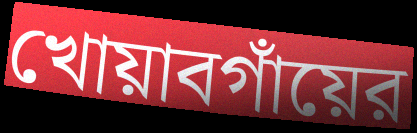
খোয়াবগাঁয়ের